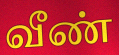
வீண்